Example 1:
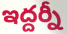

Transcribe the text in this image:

ఇద్దర్నీ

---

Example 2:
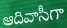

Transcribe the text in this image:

ఆదివాసీగా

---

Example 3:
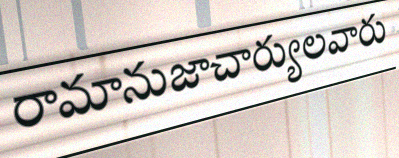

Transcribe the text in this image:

రామానుజాచార్యులవారు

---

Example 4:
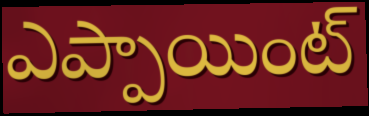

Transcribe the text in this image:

ఎప్పాయింట్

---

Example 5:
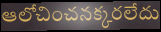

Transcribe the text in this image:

ఆలోచించనక్కరలేదు